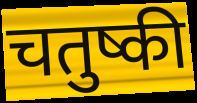
चतुष्की